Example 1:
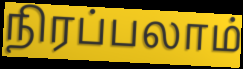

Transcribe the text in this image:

நிரப்பலாம்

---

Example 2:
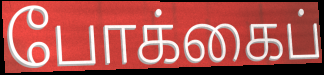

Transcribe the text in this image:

போக்கைப்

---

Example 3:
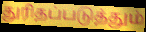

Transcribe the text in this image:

துரிதப்படுத்தும்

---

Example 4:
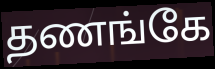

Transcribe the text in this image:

தணங்கே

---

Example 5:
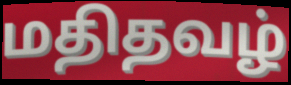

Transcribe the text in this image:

மதிதவழ்